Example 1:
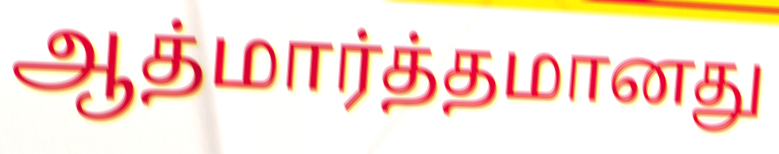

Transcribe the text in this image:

ஆத்மார்த்தமானது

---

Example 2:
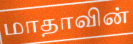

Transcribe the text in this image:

மாதாவின்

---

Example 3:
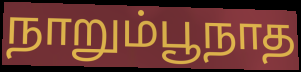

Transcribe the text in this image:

நாறும்பூநாத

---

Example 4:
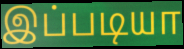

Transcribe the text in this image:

இப்படியா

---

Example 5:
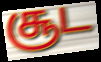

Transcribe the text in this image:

சூட